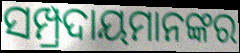
ସମ୍ପ୍ରଦାୟମାନଙ୍କର